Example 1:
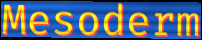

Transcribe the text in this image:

Mesoderm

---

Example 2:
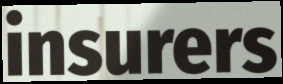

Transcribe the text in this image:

insurers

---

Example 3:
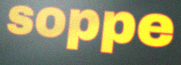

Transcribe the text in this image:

soppe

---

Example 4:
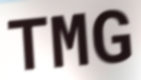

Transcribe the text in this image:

TMG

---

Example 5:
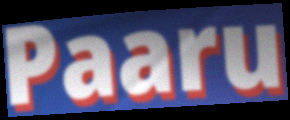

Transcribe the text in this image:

Paaru